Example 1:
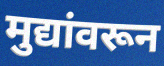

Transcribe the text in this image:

मुद्यांवरून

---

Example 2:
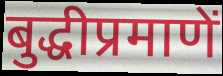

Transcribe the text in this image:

बुद्धीप्रमाणें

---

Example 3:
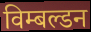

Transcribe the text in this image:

विम्बल्डन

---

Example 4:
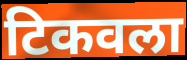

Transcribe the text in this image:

टिकवला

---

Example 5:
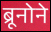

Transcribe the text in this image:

ब्रूनोने